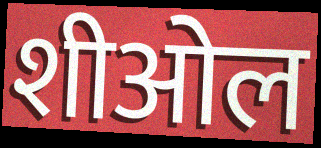
शीओल